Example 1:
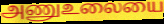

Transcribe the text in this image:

அணுஉலையை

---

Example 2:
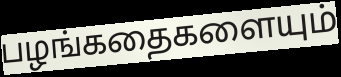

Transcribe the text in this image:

பழங்கதைகளையும்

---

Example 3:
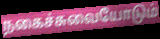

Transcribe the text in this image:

நகைச்சுவையோடும்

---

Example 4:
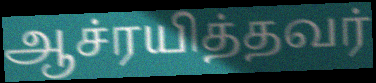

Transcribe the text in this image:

ஆச்ரயித்தவர்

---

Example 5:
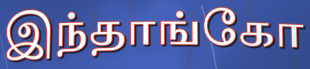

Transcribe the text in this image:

இந்தாங்கோ